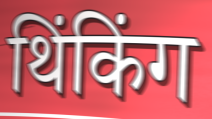
थिंकिंग